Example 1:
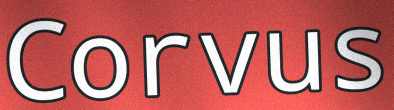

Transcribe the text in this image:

Corvus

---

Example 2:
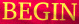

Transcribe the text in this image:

BEGIN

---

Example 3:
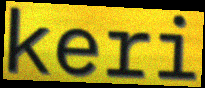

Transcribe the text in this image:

keri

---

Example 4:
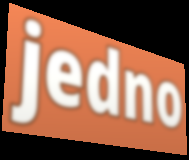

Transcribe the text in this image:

jedno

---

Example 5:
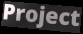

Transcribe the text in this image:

Project